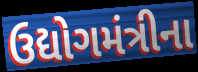
ઉદ્યોગમંત્રીના